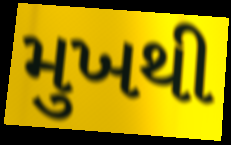
મુખથી